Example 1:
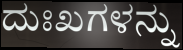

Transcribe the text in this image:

ದುಃಖಗಳನ್ನು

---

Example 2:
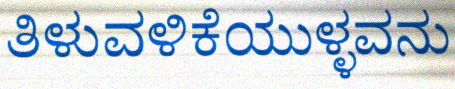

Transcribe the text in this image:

ತಿಳುವಳಿಕೆಯುಳ್ಳವನು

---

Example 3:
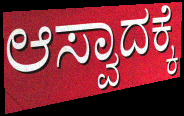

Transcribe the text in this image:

ಆಸ್ವಾದಕ್ಕೆ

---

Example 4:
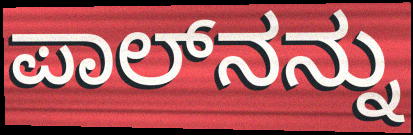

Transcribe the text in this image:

ಪಾಲ್‍ನನ್ನು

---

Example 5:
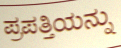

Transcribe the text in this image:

ಪ್ರಪತ್ತಿಯನ್ನು